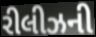
રીલીઝની